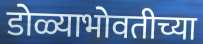
डोळ्याभोवतीच्या